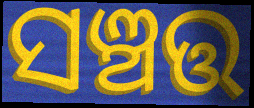
ସଞ୍ଚତ୍ତ